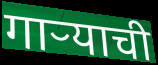
गाऱ्याची